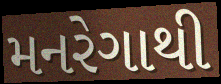
મનરેગાથી